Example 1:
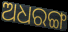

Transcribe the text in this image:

ଅଧରଙ୍ଗ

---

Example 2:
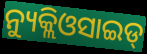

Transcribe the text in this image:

ନ୍ୟୁକ୍ଲିଓସାଇଡ୍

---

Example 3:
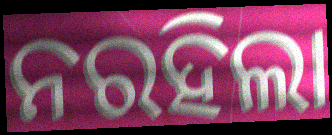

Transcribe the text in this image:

ନରହିଲା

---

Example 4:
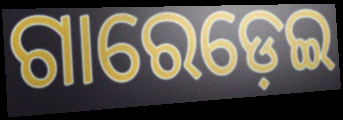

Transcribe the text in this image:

ଗାରେଡ଼େଇ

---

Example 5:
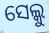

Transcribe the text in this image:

ସେଲ୍କୁ